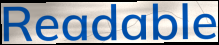
Readable